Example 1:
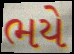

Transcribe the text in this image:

ભયે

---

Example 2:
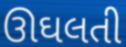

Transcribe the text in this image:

ઊઘલતી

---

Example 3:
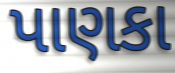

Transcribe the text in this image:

પાણકા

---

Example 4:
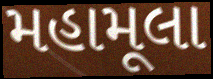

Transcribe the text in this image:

મહામૂલા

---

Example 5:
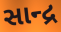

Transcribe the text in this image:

સાન્દ્ર